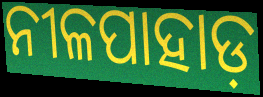
ନୀଳପାହାଡ଼